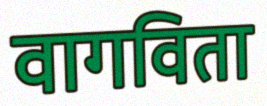
वागविता